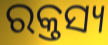
ରକ୍ତସ୍ୟ